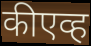
कीएव्ह